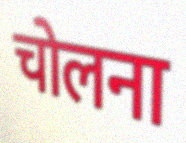
चोलना